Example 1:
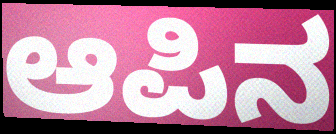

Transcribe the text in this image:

ಆಪಿನ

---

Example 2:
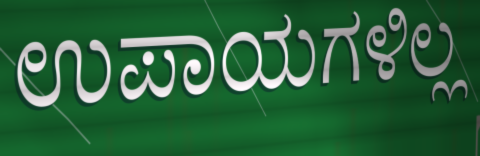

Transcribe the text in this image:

ಉಪಾಯಗಳಿಲ್ಲ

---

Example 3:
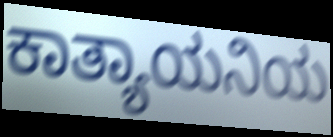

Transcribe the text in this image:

ಕಾತ್ಯಾಯನಿಯ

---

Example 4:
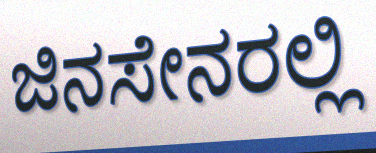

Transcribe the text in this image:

ಜಿನಸೇನರಲ್ಲಿ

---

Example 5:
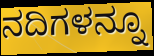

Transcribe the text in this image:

ನದಿಗಳನ್ನೂ